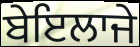
ਬੇਇਲਾਜੇ